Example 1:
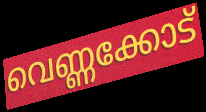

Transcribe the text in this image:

വെണ്ണക്കോട്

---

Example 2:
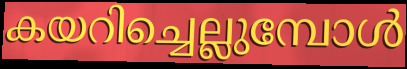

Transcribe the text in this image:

കയറിച്ചെല്ലുമ്പോൾ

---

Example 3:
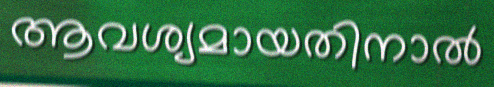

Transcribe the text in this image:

ആവശ്യമായതിനാൽ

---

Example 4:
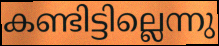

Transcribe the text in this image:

കണ്ടിട്ടില്ലെന്നു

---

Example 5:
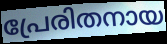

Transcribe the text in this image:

പ്രേരിതനായ